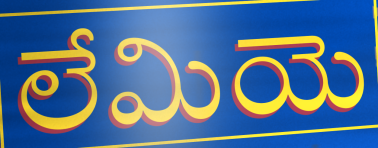
లేమియె